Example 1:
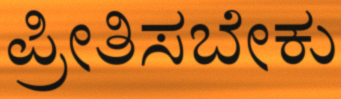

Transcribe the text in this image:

ಪ್ರೀತಿಸಬೇಕು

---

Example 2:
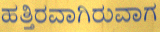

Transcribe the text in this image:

ಹತ್ತಿರವಾಗಿರುವಾಗ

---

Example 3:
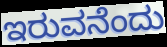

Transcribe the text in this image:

ಇರುವನೆಂದು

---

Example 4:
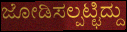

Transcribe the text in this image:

ಜೋಡಿಸಲ್ಪಟ್ಟಿದ್ದು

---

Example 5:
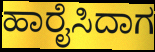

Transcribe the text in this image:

ಹಾರೈಸಿದಾಗ